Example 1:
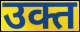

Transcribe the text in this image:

उक्त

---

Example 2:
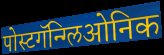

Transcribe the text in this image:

पोस्टगॅन्ग्लिओनिक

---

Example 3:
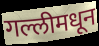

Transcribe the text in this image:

गल्लीमधून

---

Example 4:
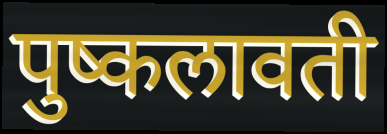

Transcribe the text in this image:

पुष्कलावती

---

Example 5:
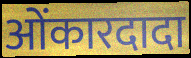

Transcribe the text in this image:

ओंकारदादा